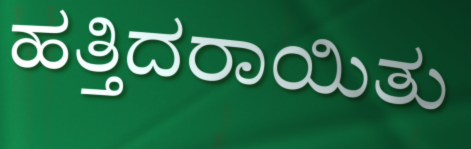
ಹತ್ತಿದರಾಯಿತು